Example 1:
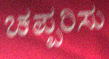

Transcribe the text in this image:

ಚಪ್ಪರಿಸು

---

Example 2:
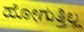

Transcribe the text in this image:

ಹೋಗುತ್ತಿಲ್ಲ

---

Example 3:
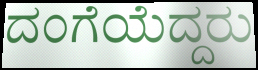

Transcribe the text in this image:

ದಂಗೆಯೆದ್ದರು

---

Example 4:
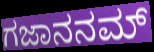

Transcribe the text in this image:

ಗಜಾನನಮ್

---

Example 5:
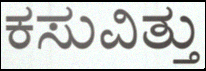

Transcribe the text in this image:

ಕಸುವಿತ್ತು